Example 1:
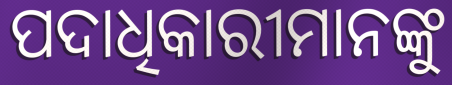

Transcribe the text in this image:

ପଦାଧିକାରୀମାନଙ୍କୁ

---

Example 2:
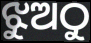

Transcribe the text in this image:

ଝୁଅଠୁ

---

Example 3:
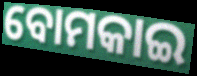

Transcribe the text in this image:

ବୋମକାଇ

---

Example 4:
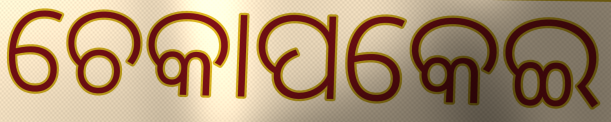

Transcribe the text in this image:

ଚେକାପକେଇ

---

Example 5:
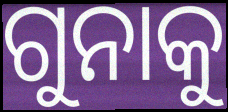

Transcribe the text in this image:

ଗୁନାକୁ